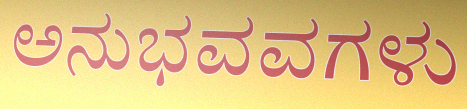
ಅನುಭವವಗಳು